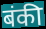
बंकी